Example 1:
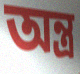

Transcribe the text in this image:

অন্ত্র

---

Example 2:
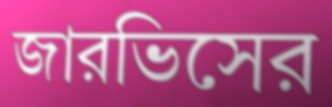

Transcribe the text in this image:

জারভিসের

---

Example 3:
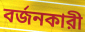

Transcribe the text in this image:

বর্জনকারী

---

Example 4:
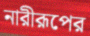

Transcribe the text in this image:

নারীরূপের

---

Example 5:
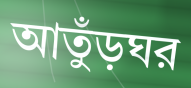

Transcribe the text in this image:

আতুঁড়ঘর